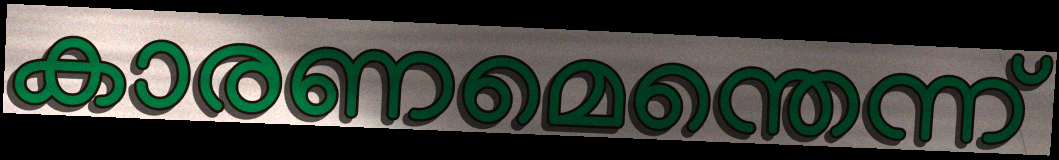
കാരണമെന്തെന്ന്